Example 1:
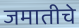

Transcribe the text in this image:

जमातीचे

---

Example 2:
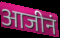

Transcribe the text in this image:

आजीनं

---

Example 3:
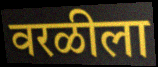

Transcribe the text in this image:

वरळीला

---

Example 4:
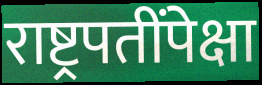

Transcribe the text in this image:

राष्ट्रपतींपेक्षा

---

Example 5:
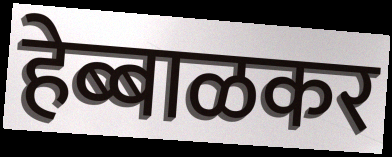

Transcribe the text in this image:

हेब्बाळकर